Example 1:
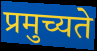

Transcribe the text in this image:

प्रमुच्यते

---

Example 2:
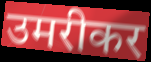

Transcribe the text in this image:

उमरीकर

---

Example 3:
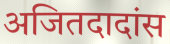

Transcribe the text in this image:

अजितदादांस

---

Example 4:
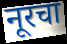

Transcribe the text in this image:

नूरचा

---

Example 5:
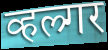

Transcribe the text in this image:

व्हल्गर